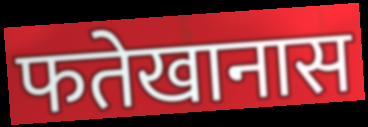
फतेखानास